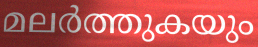
മലർത്തുകയും